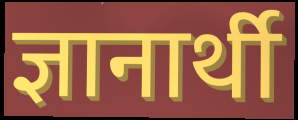
ज्ञानार्थी